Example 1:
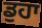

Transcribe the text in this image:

ਡੁਹਾ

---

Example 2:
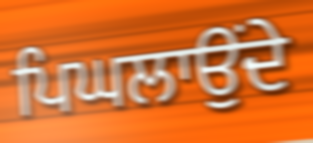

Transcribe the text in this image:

ਪਿਘਲਾਉਂਦੇ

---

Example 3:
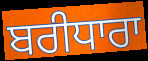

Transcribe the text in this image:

ਬਰੀਧਾਰਾ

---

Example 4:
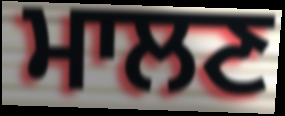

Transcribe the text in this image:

ਮਾਲਣ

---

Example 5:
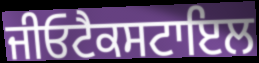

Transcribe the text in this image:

ਜੀਓਟੈਕਸਟਾਇਲ